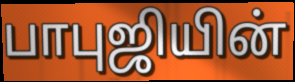
பாபுஜியின்